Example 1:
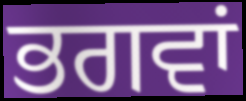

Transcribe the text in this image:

ਭਗਵਾਂ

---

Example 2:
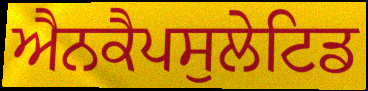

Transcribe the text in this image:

ਐਨਕੈਪਸੁਲੇਟਿਡ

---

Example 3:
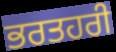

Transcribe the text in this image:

ਭਰਤਹਰੀ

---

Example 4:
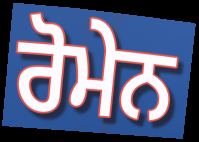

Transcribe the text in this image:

ਰੋਮੇਨ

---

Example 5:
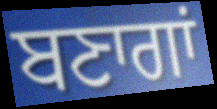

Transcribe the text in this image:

ਬਣਾਗਾਂ